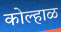
कोल्हाळ